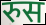
रुस